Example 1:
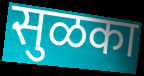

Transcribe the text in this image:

सुळका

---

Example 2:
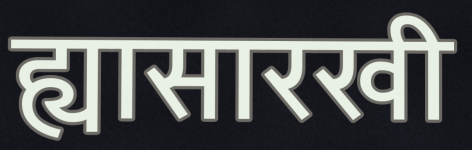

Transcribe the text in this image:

ह्यासारखी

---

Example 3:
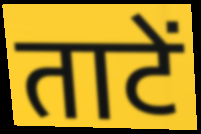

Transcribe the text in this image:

ताटें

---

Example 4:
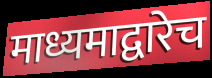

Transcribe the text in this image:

माध्यमाद्वारेच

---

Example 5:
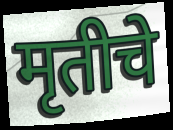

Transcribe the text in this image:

मृतीचे